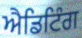
ਐਡਿਟਿੰਗ